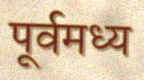
पूर्वमध्य